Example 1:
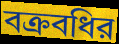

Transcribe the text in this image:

বক্রবধির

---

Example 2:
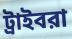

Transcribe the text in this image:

ট্রাইবরা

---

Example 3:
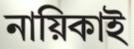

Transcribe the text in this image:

নায়িকাই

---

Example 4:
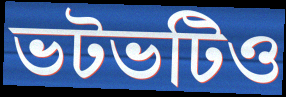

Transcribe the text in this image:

ভটভটিও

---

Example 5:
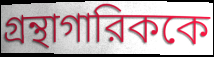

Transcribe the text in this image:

গ্রন্থাগারিককে